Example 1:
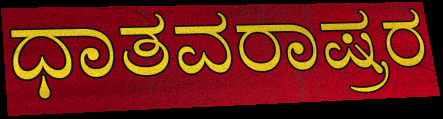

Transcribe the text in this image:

ಧಾತವರಾಷ್ರರ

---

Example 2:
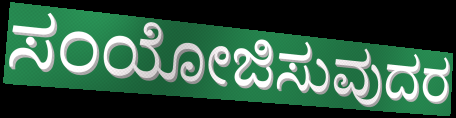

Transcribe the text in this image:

ಸಂಯೋಜಿಸುವುದರ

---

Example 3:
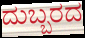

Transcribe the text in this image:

ದುಬ್ಬರದ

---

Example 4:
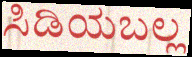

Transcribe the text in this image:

ಸಿಡಿಯಬಲ್ಲ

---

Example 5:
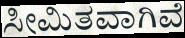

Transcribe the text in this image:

ಸೀಮಿತವಾಗಿವೆ